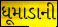
ધૂમાડાની